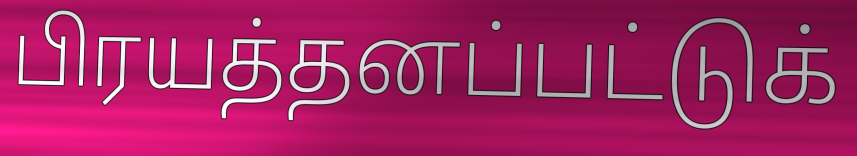
பிரயத்தனப்பட்டுக்